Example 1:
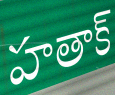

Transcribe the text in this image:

హతాక్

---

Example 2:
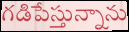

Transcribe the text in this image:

గడిపేస్తున్నాను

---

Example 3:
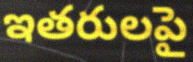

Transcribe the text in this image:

ఇతరులపై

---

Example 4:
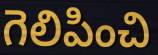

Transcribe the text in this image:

గెలిపించి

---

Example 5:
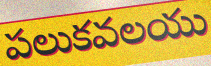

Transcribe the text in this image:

పలుకవలయు